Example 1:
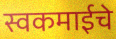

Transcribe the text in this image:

स्वकमाईचे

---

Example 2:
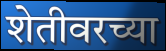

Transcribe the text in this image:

शेतीवरच्या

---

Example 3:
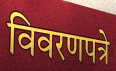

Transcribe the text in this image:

विवरणपत्रे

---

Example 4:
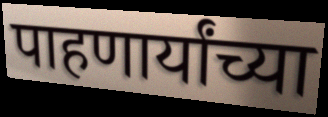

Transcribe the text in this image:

पाहणार्यांच्या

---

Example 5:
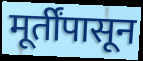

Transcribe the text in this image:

मूर्तींपासून